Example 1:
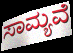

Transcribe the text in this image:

ಸಾಮ್ಯವೆ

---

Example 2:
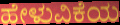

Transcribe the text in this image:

ಹೇಳುವಿಕೆಯ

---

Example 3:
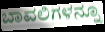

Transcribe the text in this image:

ಬಾವಲಿಗಳನ್ನೂ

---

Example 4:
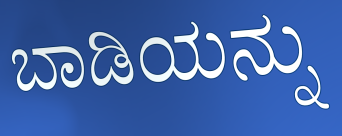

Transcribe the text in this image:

ಬಾಡಿಯನ್ನು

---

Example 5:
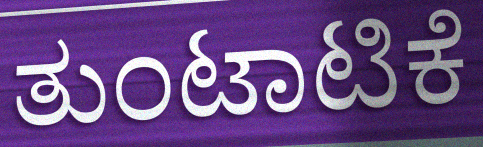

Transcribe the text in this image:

ತುಂಟಾಟಿಕೆ